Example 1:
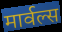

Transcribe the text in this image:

मार्वल्स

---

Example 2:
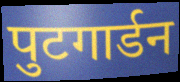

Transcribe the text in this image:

पुटगार्डन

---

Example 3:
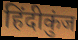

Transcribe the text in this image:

हिंदीकुंज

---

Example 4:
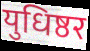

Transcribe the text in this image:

युधिष्ठर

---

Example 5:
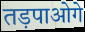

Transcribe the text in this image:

तड़पाओगे